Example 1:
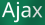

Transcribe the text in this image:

Ajax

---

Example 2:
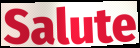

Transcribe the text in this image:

Salute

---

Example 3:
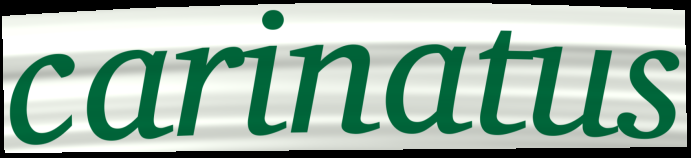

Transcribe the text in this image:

carinatus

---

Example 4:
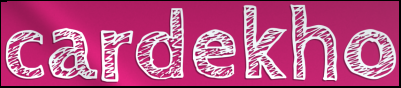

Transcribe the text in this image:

cardekho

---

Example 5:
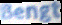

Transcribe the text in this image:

Bengt